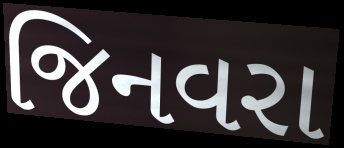
જિનવરા